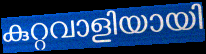
കുറ്റവാളിയായി